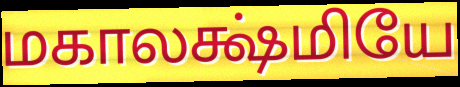
மகாலக்ஷ்மியே